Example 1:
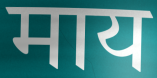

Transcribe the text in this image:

माय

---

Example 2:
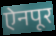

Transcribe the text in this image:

ऐनपूर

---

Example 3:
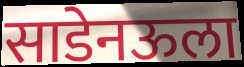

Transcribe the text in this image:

साडेनऊला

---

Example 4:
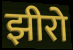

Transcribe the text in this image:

झीरो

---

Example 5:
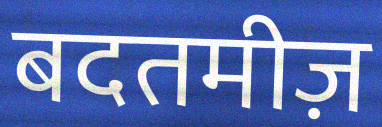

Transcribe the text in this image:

बदतमीज़